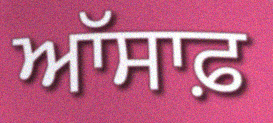
ਆੱਸਾਫ਼